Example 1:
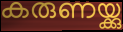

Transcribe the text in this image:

കരുണയ്ക്കു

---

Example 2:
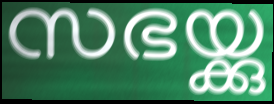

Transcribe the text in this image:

സഭയ്ക്കു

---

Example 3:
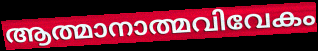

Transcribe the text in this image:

ആത്മാനാത്മവിവേകം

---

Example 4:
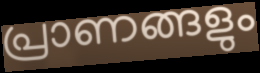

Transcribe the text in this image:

പ്രാണങ്ങളും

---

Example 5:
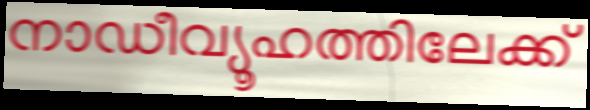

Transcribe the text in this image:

നാഡീവ്യൂഹത്തിലേക്ക്